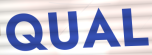
QUAL